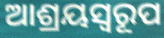
ଆଶ୍ରୟସ୍ୱରୂପ